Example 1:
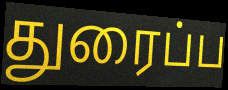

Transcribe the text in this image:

துரைப்ப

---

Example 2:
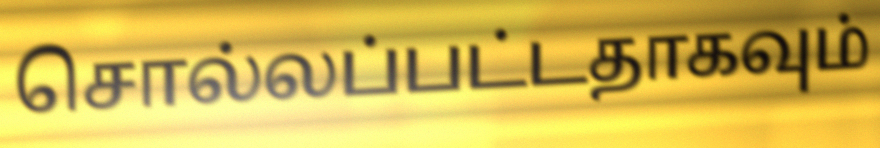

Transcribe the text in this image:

சொல்லப்பட்டதாகவும்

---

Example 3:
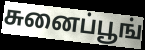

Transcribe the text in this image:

சுனைப்பூங்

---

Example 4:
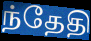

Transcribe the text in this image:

ந்தேதி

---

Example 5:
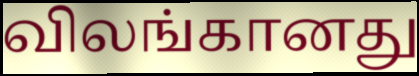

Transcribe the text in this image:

விலங்கானது